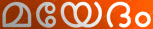
മയേദം